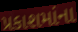
પ્રકાશમાંના